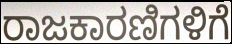
ರಾಜಕಾರಣಿಗಳಿಗೆ